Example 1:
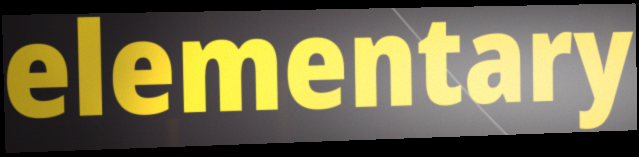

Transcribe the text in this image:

elementary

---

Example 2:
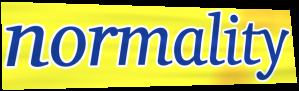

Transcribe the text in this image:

normality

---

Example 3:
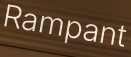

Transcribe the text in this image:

Rampant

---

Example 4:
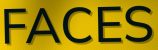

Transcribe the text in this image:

FACES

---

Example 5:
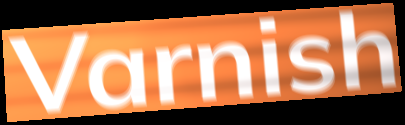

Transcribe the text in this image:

Varnish